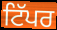
ਟਿੱਪਰ